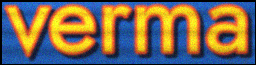
verma